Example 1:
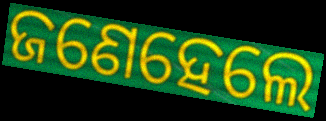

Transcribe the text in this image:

ଜଣେହେଲେ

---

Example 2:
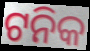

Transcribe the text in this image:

ଟନିକ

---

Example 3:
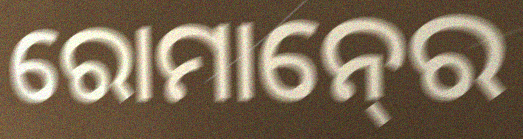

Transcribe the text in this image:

ରୋମାନ୍‍ରେ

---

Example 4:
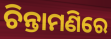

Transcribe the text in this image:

ଚିନ୍ତାମଣିରେ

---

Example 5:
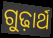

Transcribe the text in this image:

ଗୁଢ଼ାର୍ଥ